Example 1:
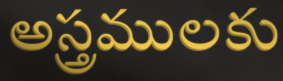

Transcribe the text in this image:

అస్త్రములకు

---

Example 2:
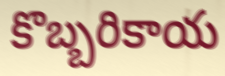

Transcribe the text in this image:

కొబ్బరికాయ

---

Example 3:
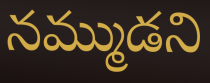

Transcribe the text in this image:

నమ్ముడని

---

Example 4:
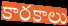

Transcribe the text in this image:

కారకాలు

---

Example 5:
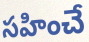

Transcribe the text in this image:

సహించే